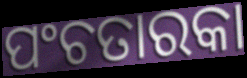
ପଂଚତାରକା